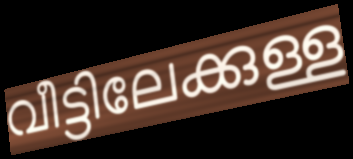
വീട്ടിലേക്കുള്ള